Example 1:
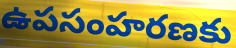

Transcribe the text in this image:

ఉపసంహరణకు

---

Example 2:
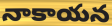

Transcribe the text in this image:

నాకాయన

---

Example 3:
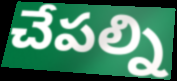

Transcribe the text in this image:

చేపల్ని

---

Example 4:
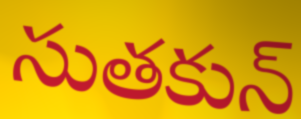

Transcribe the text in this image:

సుతకున్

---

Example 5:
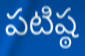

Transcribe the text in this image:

పటిష్ఠ